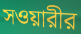
সওয়ারীর